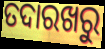
ତଦାରଖରୁ